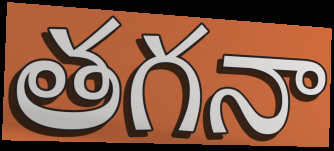
తగనా